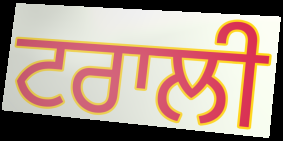
ਟਰਾਲੀ